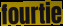
fourtie